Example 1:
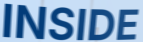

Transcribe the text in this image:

INSIDE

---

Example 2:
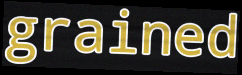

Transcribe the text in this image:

grained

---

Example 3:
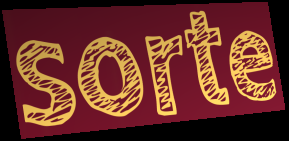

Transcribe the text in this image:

sorte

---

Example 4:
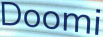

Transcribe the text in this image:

Doomi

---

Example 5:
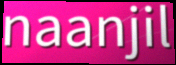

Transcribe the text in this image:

naanjil